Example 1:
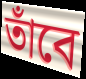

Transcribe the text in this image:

তাঁবে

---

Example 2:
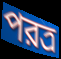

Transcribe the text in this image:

পরত্র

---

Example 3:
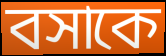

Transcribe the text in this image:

বসাকে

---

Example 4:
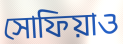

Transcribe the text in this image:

সোফিয়াও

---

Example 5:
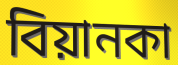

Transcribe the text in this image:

বিয়ানকা